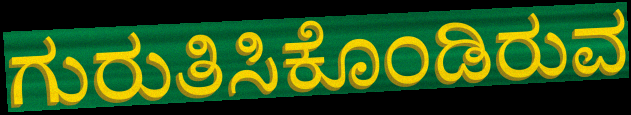
ಗುರುತಿಸಿಕೊಂಡಿರುವ